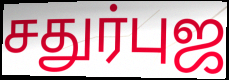
சதுர்புஜ